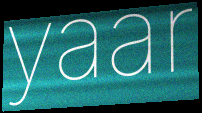
yaar